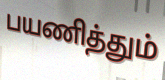
பயணித்தும்